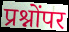
प्रश्नोंपर